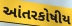
આંતરકોષીય